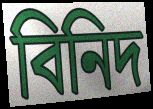
বিনিদ